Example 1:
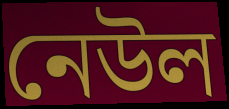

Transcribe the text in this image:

নেউল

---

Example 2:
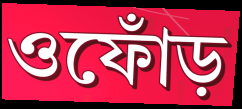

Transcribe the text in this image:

ওফোঁড়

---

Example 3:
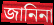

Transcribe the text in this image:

জানিনা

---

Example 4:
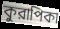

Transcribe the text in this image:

কুরাপিকা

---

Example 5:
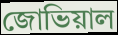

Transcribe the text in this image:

জোভিয়াল